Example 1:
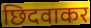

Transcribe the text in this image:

छिदवाकर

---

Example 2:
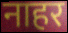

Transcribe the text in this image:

नाहर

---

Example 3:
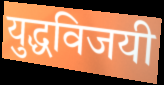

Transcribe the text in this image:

युद्धविजयी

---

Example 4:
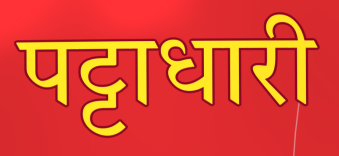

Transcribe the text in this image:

पट्टाधारी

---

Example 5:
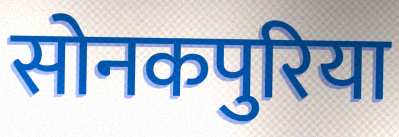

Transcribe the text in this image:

सोनकपुरिया